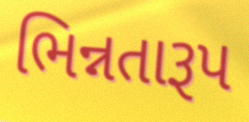
ભિન્નતારૂપ